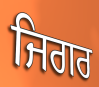
ਜਿਗਰ